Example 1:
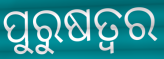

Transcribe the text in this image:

ପୁରୁଷତ୍ଵର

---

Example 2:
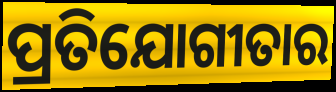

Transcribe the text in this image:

ପ୍ରତିଯୋଗୀତାର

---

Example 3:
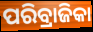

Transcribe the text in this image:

ପରିବ୍ରାଜିକା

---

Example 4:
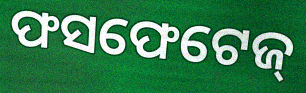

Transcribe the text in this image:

ଫସଫେଟେଜ୍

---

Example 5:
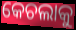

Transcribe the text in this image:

କେଚଲାକୁ